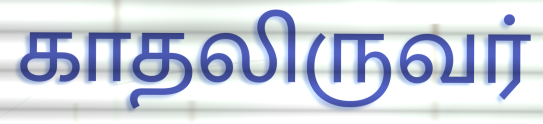
காதலிருவர்